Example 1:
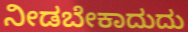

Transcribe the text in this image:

ನೀಡಬೇಕಾದುದು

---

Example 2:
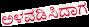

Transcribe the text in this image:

ಅಳವಡಿಸಿದಾಗ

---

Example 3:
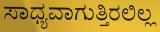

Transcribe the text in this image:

ಸಾಧ್ಯವಾಗುತ್ತಿರಲಿಲ್ಲ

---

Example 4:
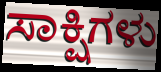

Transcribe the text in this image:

ಸಾಕ್ಷಿಗಳು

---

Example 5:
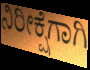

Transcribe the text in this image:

ನಿರೀಕ್ಷೆಗಾಗಿ